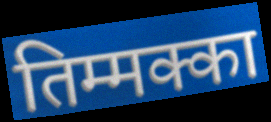
तिम्मक्का